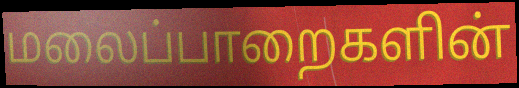
மலைப்பாறைகளின்